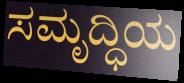
ಸಮೃದ್ಧಿಯ